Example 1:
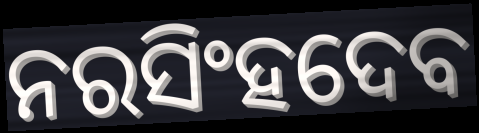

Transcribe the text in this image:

ନରସିଂହଦେବ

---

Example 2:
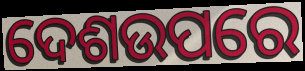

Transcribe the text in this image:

ଦେଶଉପରେ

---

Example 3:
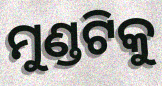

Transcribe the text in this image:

ମୁଣ୍ଡଟିକୁ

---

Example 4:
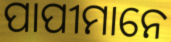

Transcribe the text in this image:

ପାପୀମାନେ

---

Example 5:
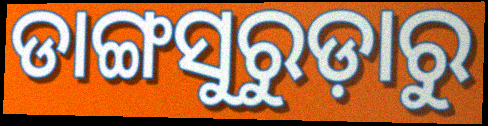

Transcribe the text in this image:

ଡାଙ୍ଗସୁରୁଡ଼ାରୁ